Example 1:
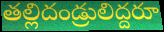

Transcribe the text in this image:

తల్లిదండ్రులిద్దరూ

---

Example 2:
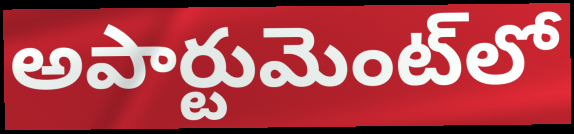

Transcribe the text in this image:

అపార్టుమెంట్‌లో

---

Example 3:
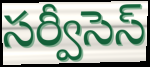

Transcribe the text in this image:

సర్వీసెస్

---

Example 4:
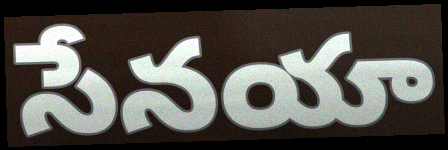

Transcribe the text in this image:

సేనయా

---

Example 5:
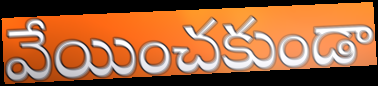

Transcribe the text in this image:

వేయించకుండా